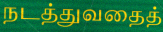
நடத்துவதைத்